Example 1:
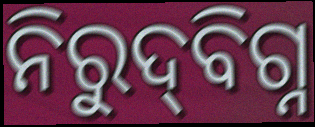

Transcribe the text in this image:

ନିରୁଦ୍‍ବିଗ୍ନ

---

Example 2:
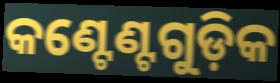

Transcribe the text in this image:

କଣ୍ଟେଣ୍ଟଗୁଡ଼ିକ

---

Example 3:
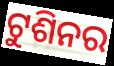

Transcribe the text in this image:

ଟୁଶିନର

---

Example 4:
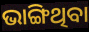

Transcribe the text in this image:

ଭାଙ୍ଗିଥିବା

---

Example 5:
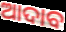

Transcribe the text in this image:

ଆଦାବ